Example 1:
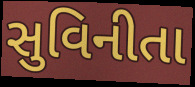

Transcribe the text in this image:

સુવિનીતા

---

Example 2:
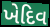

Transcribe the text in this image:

ખેદિવ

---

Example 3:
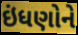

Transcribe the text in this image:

ઇંધણોને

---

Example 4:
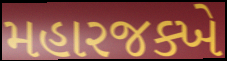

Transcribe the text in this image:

મહારજક્ખે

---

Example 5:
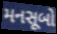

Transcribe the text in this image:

મનસૂબો